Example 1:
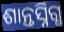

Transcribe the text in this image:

ଶାନ୍ତସ୍ନିଗ୍ଧ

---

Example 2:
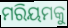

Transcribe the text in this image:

ମରିୟମକୁ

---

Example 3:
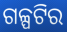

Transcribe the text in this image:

ଗଳ୍ପଟିର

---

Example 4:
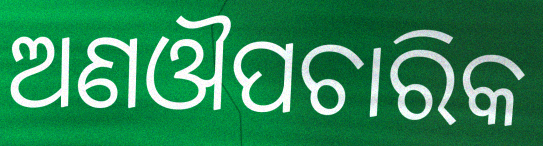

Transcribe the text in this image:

ଅଣଔପଚାରିକ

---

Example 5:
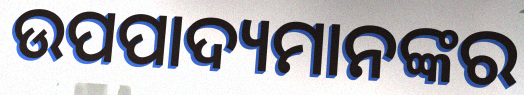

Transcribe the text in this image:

ଉପପାଦ୍ୟମାନଙ୍କର